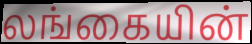
லங்கையின்